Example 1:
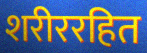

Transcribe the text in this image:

शरीररहित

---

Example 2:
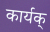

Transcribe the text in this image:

कार्यक्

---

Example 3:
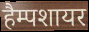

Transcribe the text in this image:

हैम्पशायर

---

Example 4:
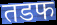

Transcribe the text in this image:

तडफ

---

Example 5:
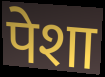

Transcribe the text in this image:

पेशा